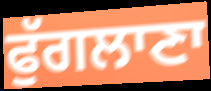
ਫੁੱਗਲਾਣਾ